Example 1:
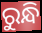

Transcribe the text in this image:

ରୁନ୍ଧି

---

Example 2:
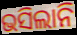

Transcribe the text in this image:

ଭସିଲାନି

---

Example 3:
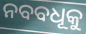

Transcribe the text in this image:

ନବବଧୂକୁ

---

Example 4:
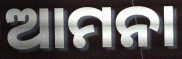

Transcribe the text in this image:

ଆମନା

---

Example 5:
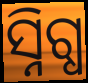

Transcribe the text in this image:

ସ୍ନିଗ୍ଧ